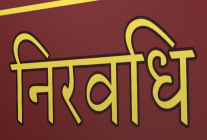
निरवधि